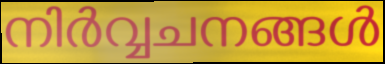
നിർവ്വചനങ്ങൾ